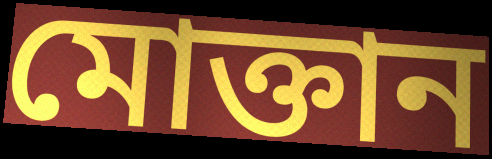
মোক্তান